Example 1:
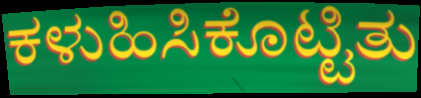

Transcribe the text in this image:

ಕಳುಹಿಸಿಕೊಟ್ಟಿತು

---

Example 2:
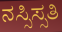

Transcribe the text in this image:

ನಸ್ಸಿಸ್ಸತಿ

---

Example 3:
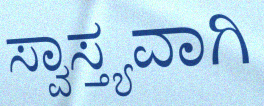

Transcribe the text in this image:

ಸ್ವಾಸ್ತ್ಯವಾಗಿ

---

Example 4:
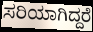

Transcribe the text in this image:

ಸರಿಯಾಗಿದ್ದರೆ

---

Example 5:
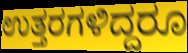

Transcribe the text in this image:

ಉತ್ತರಗಳಿದ್ದರೂ